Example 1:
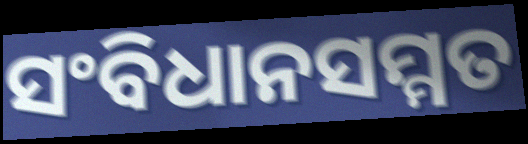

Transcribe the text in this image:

ସଂବିଧାନସମ୍ମତ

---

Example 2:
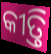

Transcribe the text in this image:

କୀତ୍ତି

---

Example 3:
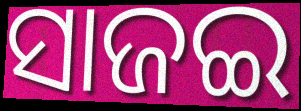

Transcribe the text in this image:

ସାଜଇ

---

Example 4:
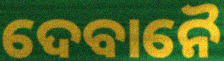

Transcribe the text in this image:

ଦେବାନୈ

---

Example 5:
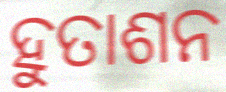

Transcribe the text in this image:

ହୁତାଶନ